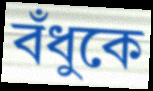
বঁধুকে